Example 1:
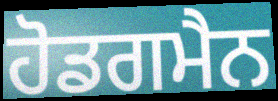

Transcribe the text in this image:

ਹੋਡਗਮੈਨ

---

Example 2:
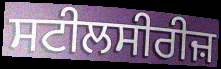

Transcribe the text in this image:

ਸਟੀਲਸੀਰੀਜ਼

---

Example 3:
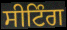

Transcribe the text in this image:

ਸੀਟਿੰਗ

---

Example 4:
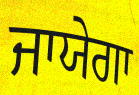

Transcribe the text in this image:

ਜਾਯੇਗਾ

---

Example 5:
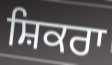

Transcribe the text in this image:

ਸ਼ਿਕਰਾ